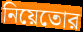
নিয়েতোর